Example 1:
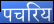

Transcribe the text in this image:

पचरिय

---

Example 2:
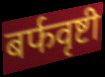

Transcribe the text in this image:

बर्फवृष्टी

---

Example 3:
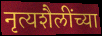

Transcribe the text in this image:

नृत्यशैलींच्या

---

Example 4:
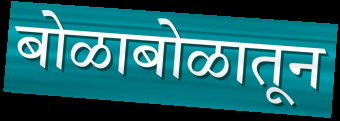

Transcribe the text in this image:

बोळाबोळातून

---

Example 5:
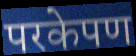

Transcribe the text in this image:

परकेपण